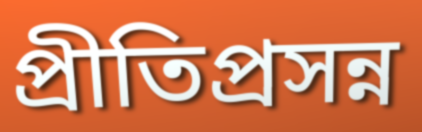
প্রীতিপ্রসন্ন